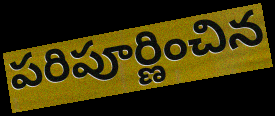
పరిపూర్ణించిన